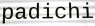
padichi